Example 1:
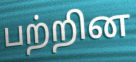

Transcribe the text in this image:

பற்றின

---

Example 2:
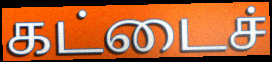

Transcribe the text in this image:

கட்டைச்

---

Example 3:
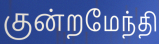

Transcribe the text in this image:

குன்றமேந்தி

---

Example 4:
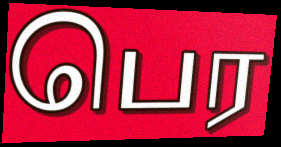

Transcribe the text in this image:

பெர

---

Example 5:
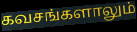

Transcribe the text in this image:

கவசங்களாலும்